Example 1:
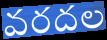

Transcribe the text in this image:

వరదల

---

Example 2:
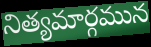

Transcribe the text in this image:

నిత్యమార్గమున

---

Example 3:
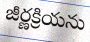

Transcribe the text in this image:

జీర్ణక్రియను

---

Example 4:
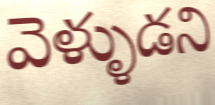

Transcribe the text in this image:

వెళ్ళుడని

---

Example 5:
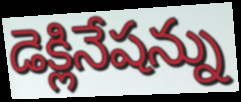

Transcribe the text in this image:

డెక్లినేషన్ను